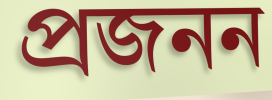
প্রজনন